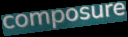
composure